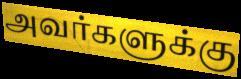
அவர்களுக்கு